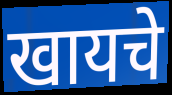
खायचे